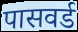
पासवर्ड